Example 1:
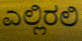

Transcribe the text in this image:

ಎಲ್ಲಿರಲಿ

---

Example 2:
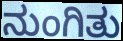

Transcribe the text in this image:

ನುಂಗಿತು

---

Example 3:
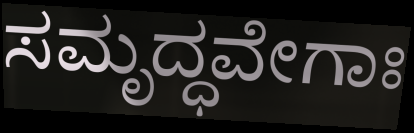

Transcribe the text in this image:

ಸಮೃದ್ಧವೇಗಾಃ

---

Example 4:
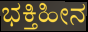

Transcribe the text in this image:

ಭಕ್ತಿಹೀನ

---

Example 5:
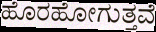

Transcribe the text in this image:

ಹೊರಹೋಗುತ್ತವೆ